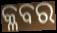
କ୍ଳବର